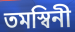
তমস্বিনী